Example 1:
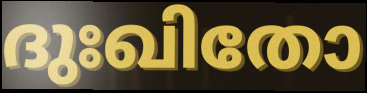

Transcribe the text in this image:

ദുഃഖിതോ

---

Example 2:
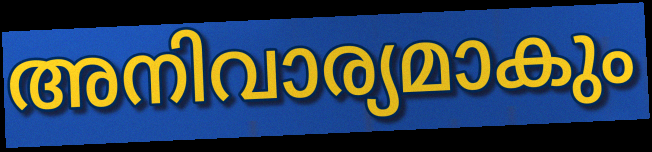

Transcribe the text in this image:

അനിവാര്യമാകും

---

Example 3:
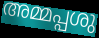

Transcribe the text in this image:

അമ്മപ്പശു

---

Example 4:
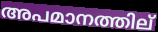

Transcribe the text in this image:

അപമാനത്തില്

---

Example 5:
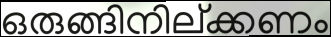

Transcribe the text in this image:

ഒരുങ്ങിനില്ക്കണം